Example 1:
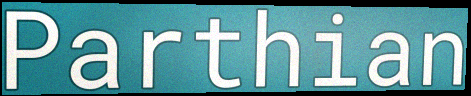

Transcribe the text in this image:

Parthian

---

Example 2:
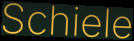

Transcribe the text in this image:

Schiele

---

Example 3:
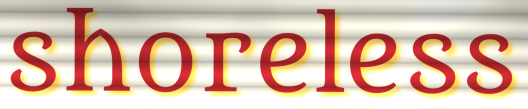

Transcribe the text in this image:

shoreless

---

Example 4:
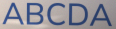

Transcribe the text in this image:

ABCDA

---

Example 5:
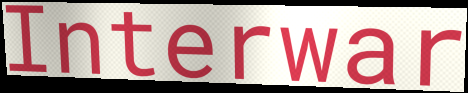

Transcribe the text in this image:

Interwar